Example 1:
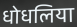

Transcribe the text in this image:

धोधलिया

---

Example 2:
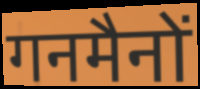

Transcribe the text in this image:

गनमैनों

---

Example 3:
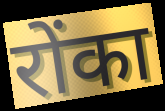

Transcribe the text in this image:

रोंका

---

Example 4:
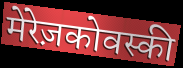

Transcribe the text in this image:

मेरेज़कोवस्की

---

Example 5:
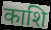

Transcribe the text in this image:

काशि